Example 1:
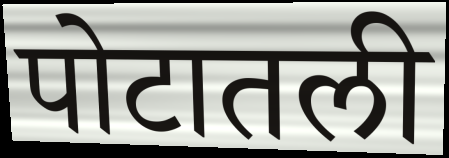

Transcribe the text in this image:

पोटातली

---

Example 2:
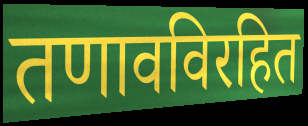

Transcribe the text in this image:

तणावविरहित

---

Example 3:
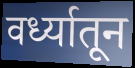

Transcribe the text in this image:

वर्ध्यातून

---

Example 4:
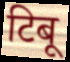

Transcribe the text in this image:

टिबू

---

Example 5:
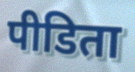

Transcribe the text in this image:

पीडिता